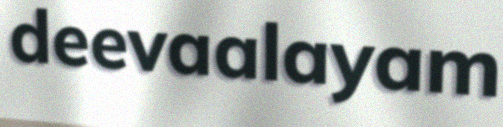
deevaalayam